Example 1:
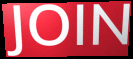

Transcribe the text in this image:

JOIN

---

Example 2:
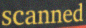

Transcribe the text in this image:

scanned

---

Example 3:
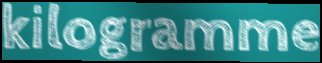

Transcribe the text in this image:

kilogramme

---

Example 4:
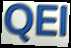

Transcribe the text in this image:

QEI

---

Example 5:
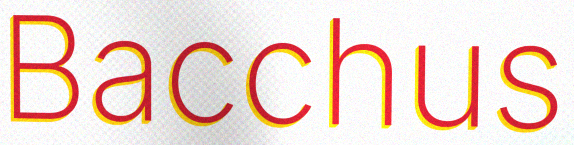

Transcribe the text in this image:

Bacchus